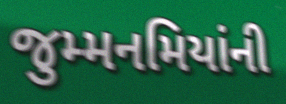
જુમ્મનમિયાંની